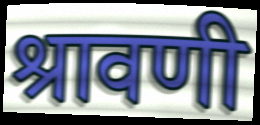
श्रावणी